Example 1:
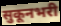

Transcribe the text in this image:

सुकूनभरी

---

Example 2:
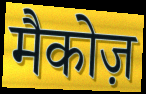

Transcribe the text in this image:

मैकोज़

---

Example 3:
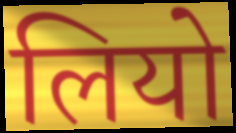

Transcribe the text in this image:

लियो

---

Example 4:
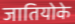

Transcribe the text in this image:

जातियोके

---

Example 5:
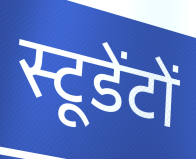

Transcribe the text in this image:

स्टूडेंटों